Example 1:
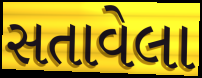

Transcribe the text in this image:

સતાવેલા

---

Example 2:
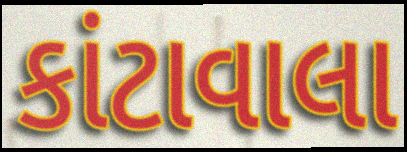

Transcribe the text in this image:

કાંટાવાલા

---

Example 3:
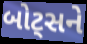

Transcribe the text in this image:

બોટ્સને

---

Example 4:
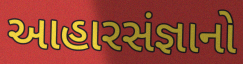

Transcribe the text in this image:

આહારસંજ્ઞાનો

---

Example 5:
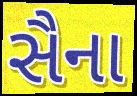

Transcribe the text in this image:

સૈના